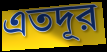
এতদূর